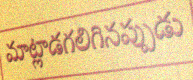
మాట్లాడగలిగినప్పుడు